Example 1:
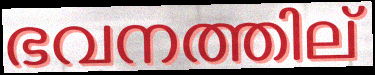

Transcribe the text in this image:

ഭവനത്തില്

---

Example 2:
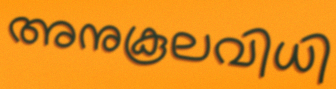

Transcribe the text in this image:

അനുകൂലവിധി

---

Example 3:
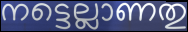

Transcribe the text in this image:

നട്ടെല്ലാണതു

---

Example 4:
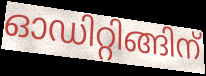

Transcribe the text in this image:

ഓഡിറ്റിങ്ങിന്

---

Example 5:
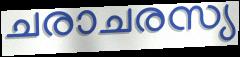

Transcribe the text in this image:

ചരാചരസ്യ